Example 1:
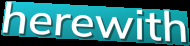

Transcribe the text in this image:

herewith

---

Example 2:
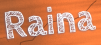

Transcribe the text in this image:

Raina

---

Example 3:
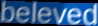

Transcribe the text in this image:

beleved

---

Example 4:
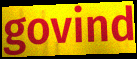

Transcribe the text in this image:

govind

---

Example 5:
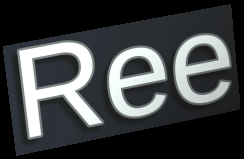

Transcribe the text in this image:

Ree